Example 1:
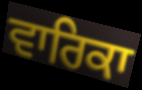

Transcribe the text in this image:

ਵਾਰਿਕਾ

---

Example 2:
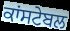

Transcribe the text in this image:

ਕਾਂਸਟੇਬਲ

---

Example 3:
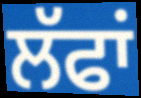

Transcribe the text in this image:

ਲੱਫਾਂ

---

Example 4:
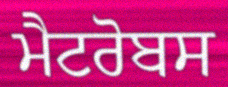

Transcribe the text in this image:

ਮੈਟਰੋਬਸ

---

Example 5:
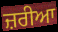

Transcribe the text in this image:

ਜ਼ਰੀਆ